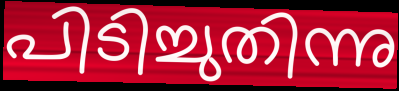
പിടിച്ചുതിന്നു